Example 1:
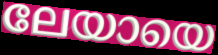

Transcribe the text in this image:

ലേയായെ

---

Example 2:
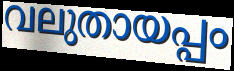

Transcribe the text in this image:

വലുതായപ്പം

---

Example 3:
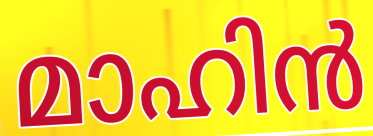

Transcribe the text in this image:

മാഹിൻ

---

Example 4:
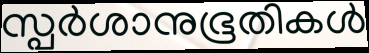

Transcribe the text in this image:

സ്പർശാനുഭൂതികൾ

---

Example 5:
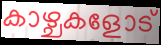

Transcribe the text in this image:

കാഴ്ചകളോട്